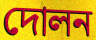
দোলন